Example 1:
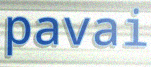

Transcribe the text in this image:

pavai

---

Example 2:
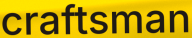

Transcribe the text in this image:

craftsman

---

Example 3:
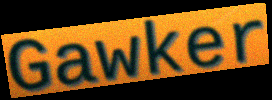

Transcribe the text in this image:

Gawker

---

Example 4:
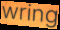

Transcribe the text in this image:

wring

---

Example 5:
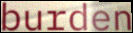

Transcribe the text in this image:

burden